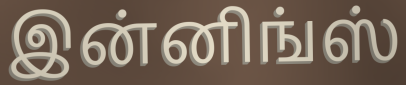
இன்னிங்ஸ்